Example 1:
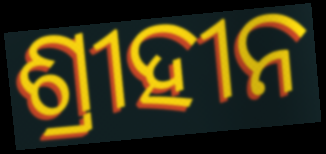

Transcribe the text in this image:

ଶ୍ରୀହୀନ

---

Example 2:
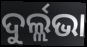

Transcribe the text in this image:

ଦୁର୍ଲ୍ଲଭା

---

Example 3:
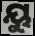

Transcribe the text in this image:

ୟୁ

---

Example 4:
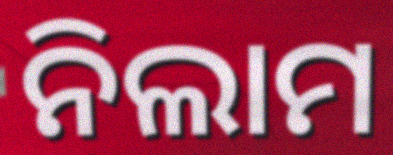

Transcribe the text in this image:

ନିଲାମ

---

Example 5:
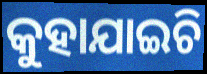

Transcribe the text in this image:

କୁହାଯାଇଚି